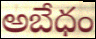
అబేధం